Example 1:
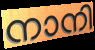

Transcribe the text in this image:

നാനി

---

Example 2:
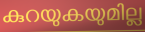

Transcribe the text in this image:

കുറയുകയുമില്ല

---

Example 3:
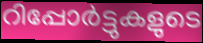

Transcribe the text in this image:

റിപ്പോർട്ടുകളുടെ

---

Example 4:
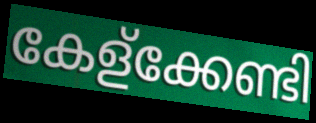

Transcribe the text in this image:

കേള്ക്കേണ്ടി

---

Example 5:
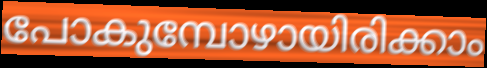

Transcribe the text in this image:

പോകുമ്പോഴായിരിക്കാം